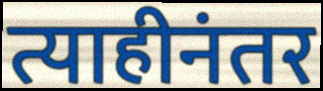
त्याहीनंतर